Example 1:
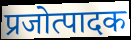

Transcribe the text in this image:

प्रजोत्पादक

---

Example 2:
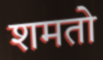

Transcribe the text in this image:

शमतो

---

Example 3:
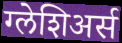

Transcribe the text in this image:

ग्लेशिअर्स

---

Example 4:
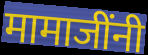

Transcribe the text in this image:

मामाजींनी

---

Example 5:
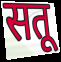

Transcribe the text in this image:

सतू